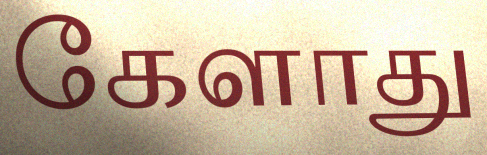
கேளாது